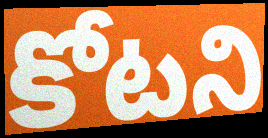
కోటని